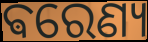
ଵରେଣ୍ୟ